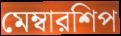
মেম্বারশিপ